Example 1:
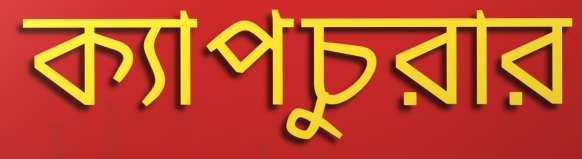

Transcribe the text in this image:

ক্যাপচুরার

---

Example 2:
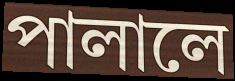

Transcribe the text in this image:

পালালে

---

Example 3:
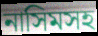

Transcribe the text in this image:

নাসিমসহ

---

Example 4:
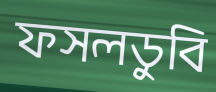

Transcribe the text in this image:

ফসলডুবি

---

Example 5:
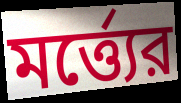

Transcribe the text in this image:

মর্ত্ত্যের